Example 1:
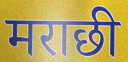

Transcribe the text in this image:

मराछी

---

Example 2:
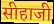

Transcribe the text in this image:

सीहाजी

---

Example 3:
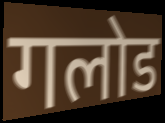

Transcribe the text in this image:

गलोड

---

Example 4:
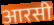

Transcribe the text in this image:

आरसी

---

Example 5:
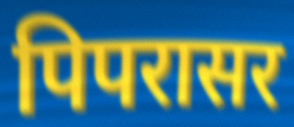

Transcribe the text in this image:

पिपरासर